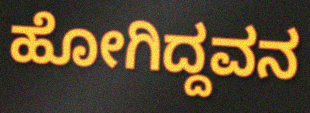
ಹೋಗಿದ್ದವನ